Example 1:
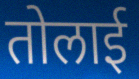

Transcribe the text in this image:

तोलाई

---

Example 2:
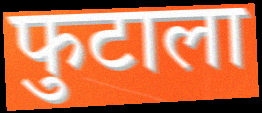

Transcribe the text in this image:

फुटाला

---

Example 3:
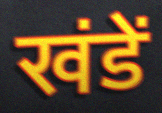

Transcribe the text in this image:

खंडें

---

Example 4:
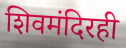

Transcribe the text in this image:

शिवमंदिरही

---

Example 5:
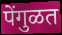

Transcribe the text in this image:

पेंगुळत